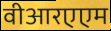
वीआरएएम